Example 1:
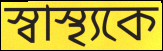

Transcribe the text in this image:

স্বাস্থ্যকে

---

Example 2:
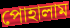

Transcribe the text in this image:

পোহালাম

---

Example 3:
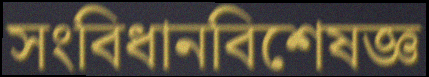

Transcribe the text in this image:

সংবিধানবিশেষজ্ঞ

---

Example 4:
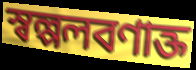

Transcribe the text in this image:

স্বল্পলবণাক্ত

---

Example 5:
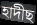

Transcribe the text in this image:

হাদীছ